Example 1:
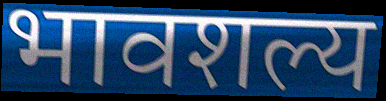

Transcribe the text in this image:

भावशल्य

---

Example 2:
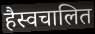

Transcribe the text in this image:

हैस्वचालित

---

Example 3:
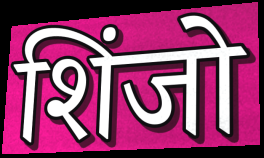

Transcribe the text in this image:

शिंजो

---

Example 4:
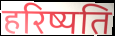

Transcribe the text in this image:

हरिष्यति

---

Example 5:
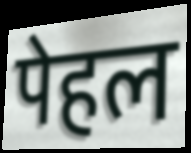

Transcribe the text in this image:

पेहल